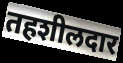
तहशीलदार